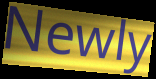
Newly